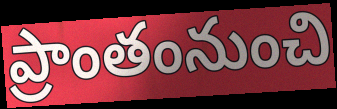
ప్రాంతంనుంచి